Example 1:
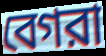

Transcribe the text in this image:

বেগরা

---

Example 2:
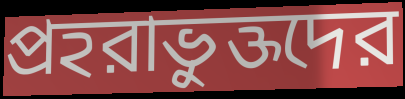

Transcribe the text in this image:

প্রহরাভুক্তদের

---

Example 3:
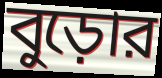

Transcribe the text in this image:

বুড়োর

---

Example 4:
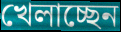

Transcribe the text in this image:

খেলাচ্ছেন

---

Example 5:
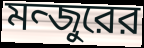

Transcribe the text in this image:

মন্জুরের